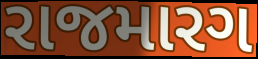
રાજમારગ